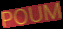
POUM